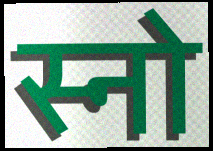
स्नो